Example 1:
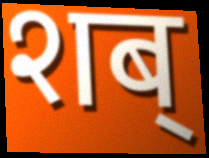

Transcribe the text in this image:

शब्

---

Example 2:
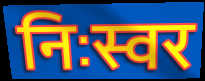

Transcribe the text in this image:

निःस्वर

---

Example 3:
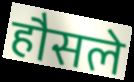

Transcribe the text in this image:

हौसले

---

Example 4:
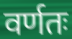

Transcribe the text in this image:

वर्णतः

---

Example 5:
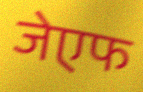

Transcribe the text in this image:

जेएफ